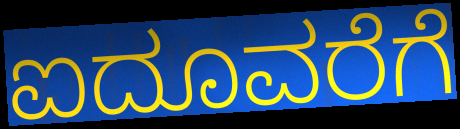
ಐದೂವರೆಗೆ